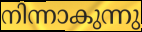
നിന്നാകുന്നു